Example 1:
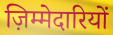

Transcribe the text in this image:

ज़िम्मेदारियों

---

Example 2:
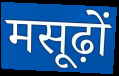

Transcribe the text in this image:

मसूढ़ों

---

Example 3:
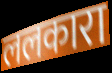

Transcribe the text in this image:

ललकारा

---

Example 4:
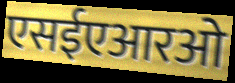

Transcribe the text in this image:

एसईएआरओ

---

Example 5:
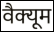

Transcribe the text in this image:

वैक्‍यूम